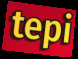
tepi